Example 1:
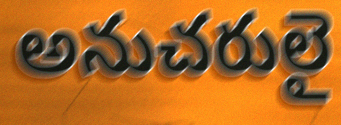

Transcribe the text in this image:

అనుచరులై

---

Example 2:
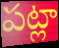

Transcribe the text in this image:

పట్లా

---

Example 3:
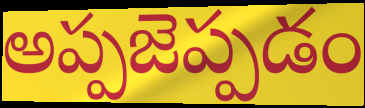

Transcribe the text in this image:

అప్పజెప్పడం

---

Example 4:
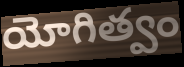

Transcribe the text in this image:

యోగిత్వం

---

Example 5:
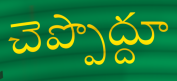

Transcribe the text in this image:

చెప్పొద్దూ